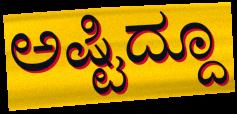
ಅಷ್ಟಿದ್ದೂ